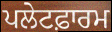
ਪਲੇਟਫ਼ਾਰਮ